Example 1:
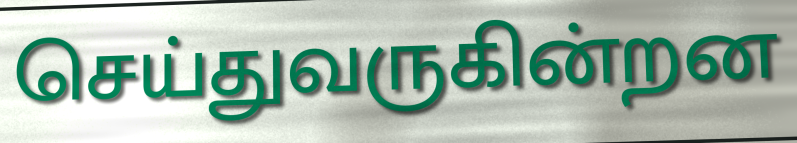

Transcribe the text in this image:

செய்துவருகின்றன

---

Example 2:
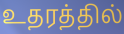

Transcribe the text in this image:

உதரத்தில்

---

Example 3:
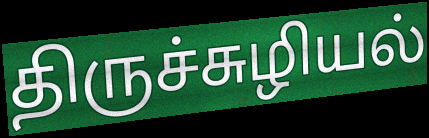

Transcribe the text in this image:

திருச்சுழியல்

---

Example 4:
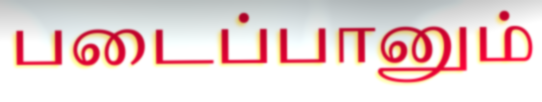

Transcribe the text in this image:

படைப்பானும்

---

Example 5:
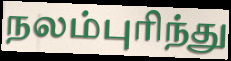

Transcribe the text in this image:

நலம்புரிந்து